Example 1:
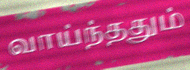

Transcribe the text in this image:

வாய்ந்ததும்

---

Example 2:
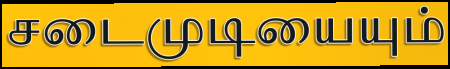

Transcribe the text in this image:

சடைமுடியையும்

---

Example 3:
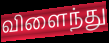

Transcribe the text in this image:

விளைந்து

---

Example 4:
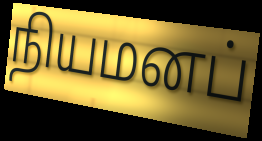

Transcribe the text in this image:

நியமனப்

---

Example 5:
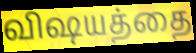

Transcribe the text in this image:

விஷயத்தை